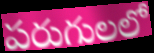
పరుగులలో